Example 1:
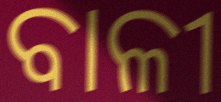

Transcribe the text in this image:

ବାଳୀ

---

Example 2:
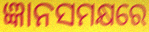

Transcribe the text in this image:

ଜ୍ଞାନସମକ୍ଷରେ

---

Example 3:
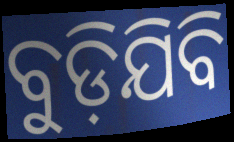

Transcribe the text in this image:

ବୁଡ଼ିଯିବି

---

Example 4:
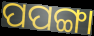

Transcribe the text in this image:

ପପଙ୍ଗା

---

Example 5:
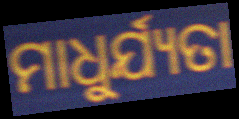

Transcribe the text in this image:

ମାଧୁର୍ଯ୍ୟତା